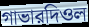
গাভারদিওল